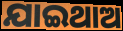
ଯାଇଥାଅ